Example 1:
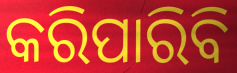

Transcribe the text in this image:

କରିପାରିବି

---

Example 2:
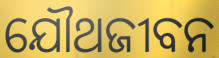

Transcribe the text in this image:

ଯୌଥଜୀବନ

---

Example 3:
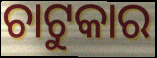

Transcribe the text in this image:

ଚାଟୁକାର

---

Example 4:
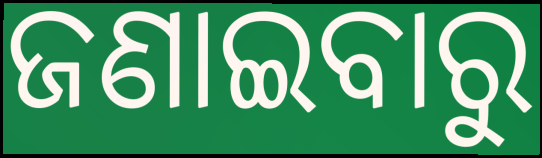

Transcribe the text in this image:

ଜଣାଇବାରୁ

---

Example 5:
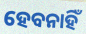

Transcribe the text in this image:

ହେବନାହିଁ